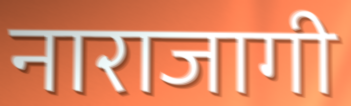
नाराजागी